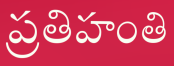
ప్రతిహంతి